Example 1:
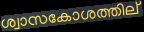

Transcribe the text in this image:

ശ്വാസകോശത്തില്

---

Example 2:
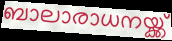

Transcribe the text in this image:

ബാലാരാധനയ്ക്ക്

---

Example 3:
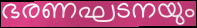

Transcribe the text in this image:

ഭരണഘടനയും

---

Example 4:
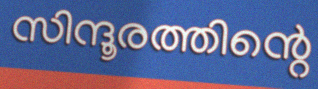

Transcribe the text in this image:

സിന്ദൂരത്തിന്റെ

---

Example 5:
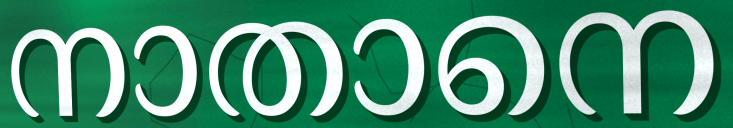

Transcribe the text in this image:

നാതാനെ